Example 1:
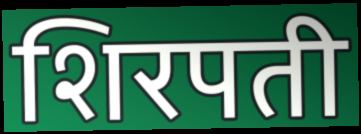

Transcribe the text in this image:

शिरपती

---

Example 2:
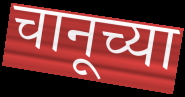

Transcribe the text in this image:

चानूच्या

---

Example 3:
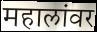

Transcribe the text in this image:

महालांवर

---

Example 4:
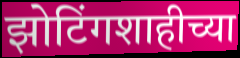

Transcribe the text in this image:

झोटिंगशाहीच्या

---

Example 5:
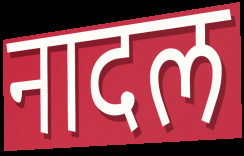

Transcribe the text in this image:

नादल